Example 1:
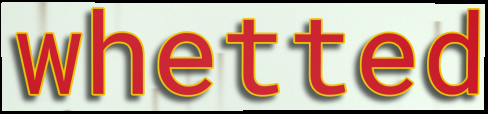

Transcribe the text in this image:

whetted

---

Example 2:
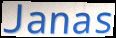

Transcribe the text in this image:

Janas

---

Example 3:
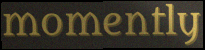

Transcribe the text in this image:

momently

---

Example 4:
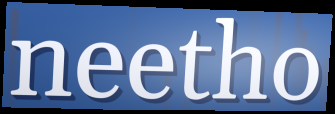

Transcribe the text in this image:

neetho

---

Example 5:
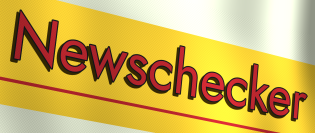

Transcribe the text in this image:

Newschecker